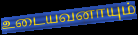
உடையவனாயும்